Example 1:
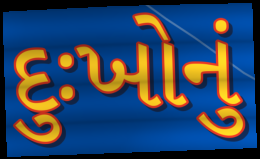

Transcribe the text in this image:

દુઃખોનું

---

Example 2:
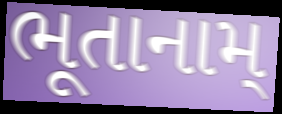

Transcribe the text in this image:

ભૂતાનામ્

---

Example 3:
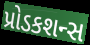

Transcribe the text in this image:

પ્રોડકશન્સ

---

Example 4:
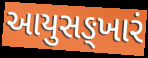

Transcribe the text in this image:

આયુસઙ્ખારં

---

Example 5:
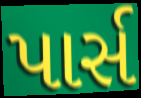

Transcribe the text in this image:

પાર્સ